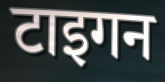
टाइगन